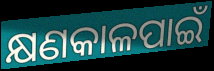
କ୍ଷଣକାଳପାଇଁ